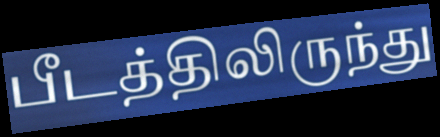
பீடத்திலிருந்து